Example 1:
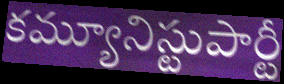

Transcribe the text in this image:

కమ్యూనిస్టుపార్టీ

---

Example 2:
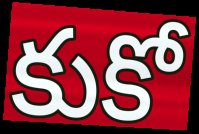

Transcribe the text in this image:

కుకో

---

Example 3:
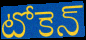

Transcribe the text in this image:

టోకెన్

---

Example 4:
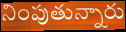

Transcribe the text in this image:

నింపుతున్నారు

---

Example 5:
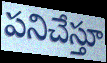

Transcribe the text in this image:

పనిచేస్తూ